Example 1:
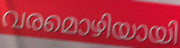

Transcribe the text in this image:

വരമൊഴിയായി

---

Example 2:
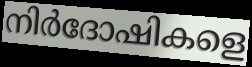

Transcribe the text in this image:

നിർദോഷികളെ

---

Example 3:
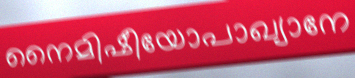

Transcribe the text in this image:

നൈമിഷീയോപാഖ്യാനേ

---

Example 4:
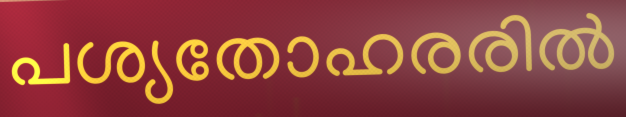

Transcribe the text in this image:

പശ്യതോഹരരിൽ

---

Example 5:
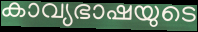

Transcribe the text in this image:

കാവ്യഭാഷയുടെ